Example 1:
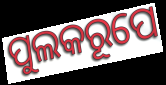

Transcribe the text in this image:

ପୁଲକରୂପେ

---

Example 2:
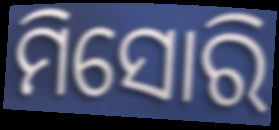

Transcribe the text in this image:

ମିସୋରି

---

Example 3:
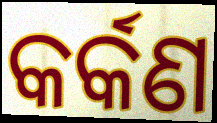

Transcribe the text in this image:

କର୍କଣ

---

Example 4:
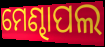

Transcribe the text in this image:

ମେଣ୍ଢାପଲ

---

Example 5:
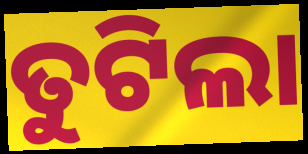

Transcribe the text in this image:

ତୁଟିଲା